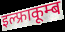
इल्फ्राकूम्ब